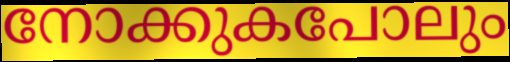
നോക്കുകപോലും